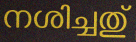
നശിച്ചതു്